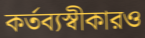
কর্তব্যস্বীকারও